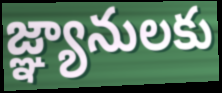
జ్ఞ్యానులకు